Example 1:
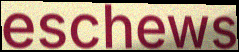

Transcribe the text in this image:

eschews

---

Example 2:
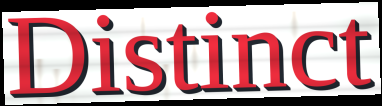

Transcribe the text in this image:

Distinct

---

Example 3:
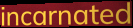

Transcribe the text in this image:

incarnated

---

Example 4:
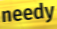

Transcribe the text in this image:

needy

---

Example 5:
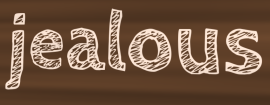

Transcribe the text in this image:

jealous